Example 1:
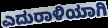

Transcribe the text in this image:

ಎದುರಾಳಿಯಾಗಿ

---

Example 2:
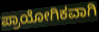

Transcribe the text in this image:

ಪ್ರಾಯೋಗಿಕವಾಗಿ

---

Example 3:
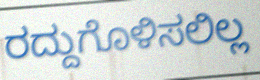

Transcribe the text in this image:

ರದ್ದುಗೊಳಿಸಲಿಲ್ಲ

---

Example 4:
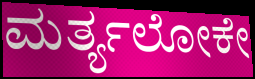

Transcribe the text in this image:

ಮರ್ತ್ಯಲೋಕೇ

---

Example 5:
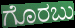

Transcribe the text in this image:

ಗೊರಬು